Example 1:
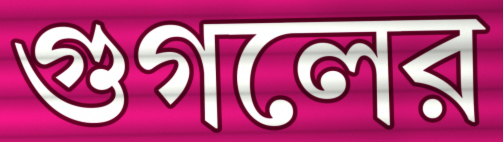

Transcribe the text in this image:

গুগলের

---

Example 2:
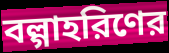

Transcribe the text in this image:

বল্গাহরিণের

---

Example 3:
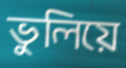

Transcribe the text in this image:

ভুলিয়ে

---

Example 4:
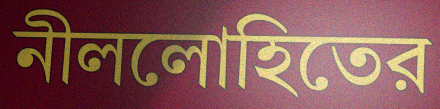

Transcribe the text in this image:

নীললোহিতের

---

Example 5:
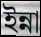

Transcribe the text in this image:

ইন্না